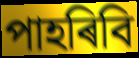
পাহৰিবি